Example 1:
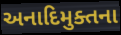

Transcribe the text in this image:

અનાદિમુક્તના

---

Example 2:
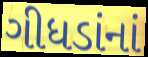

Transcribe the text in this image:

ગીધડાંનાં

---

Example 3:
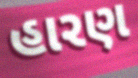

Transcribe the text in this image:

હારણ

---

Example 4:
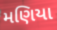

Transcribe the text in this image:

મણિયા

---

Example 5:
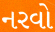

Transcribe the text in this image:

નરવો